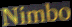
Nimbo